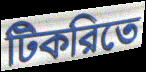
টিকরিতে